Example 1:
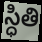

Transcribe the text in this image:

స్ధితి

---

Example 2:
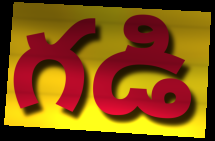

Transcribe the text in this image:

గడి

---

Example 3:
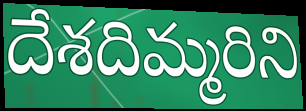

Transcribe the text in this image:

దేశదిమ్మరిని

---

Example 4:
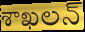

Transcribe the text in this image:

శాఖలన్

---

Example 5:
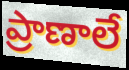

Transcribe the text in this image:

ప్రాణాలే